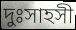
দুঃসাহসী